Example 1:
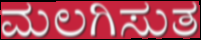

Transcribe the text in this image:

ಮಲಗಿಸುತ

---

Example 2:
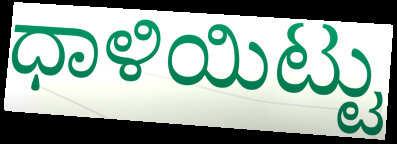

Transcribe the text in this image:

ಧಾಳಿಯಿಟ್ಟು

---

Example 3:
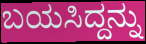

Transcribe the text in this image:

ಬಯಸಿದ್ದನ್ನು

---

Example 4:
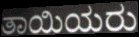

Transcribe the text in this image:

ತಾಯಿಯರು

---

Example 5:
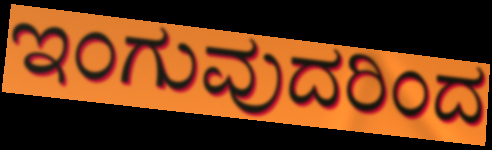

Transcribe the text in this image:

ಇಂಗುವುದರಿಂದ